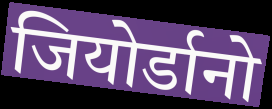
जियोर्डानो